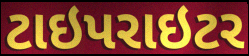
ટાઇપરાઇટર